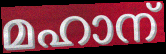
മഹാന്